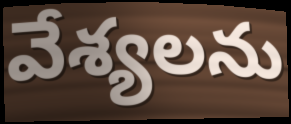
వేశ్యలను